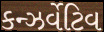
કન્ઝર્વેટિવ